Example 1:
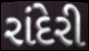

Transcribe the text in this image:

રાંદેરી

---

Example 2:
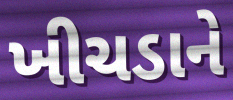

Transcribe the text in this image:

ખીચડાને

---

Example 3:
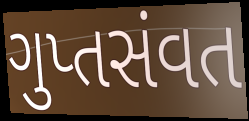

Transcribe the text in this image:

ગુપ્તસંવત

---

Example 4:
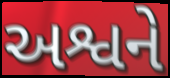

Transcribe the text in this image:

અશ્વને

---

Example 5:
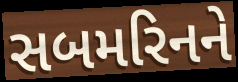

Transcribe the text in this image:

સબમરિનને